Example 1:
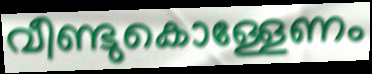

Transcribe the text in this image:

വീണ്ടുകൊള്ളേണം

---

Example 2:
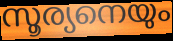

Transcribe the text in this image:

സൂര്യനെയും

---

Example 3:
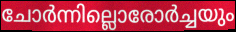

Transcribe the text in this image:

ചോർന്നില്ലൊരോർച്ചയും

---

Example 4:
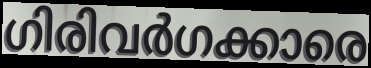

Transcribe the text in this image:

ഗിരിവർഗക്കാരെ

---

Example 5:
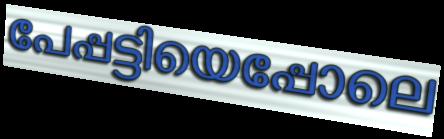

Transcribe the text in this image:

പേപ്പട്ടിയെപ്പോലെ